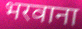
भरवाना